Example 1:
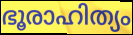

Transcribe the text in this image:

ഭൂരാഹിത്യം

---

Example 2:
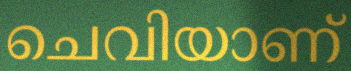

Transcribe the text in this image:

ചെവിയാണ്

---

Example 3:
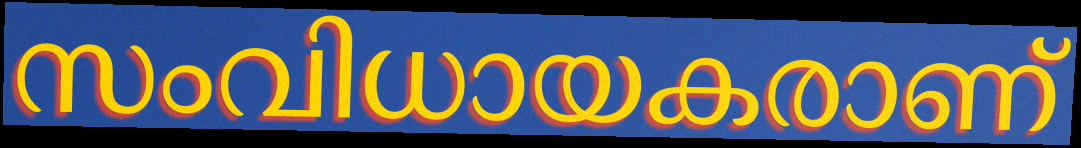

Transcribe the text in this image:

സംവിധായകരാണ്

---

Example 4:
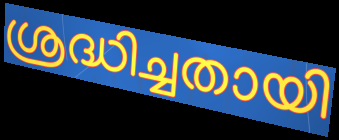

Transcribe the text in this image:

ശ്രദ്ധിച്ചതായി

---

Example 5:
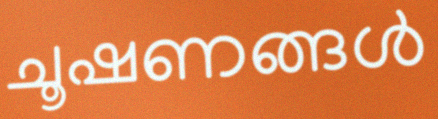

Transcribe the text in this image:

ചൂഷണങ്ങൾ